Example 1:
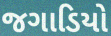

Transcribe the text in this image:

જગાડિયો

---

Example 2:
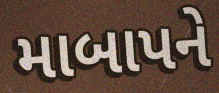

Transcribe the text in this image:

માબાપને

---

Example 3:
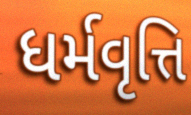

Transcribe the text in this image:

ધર્મવૃત્તિ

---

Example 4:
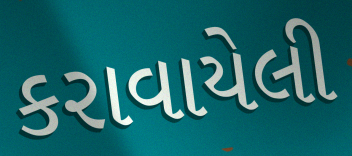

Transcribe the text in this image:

કરાવાયેલી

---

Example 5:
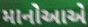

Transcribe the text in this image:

માનોઆએ